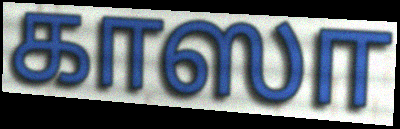
காஸா